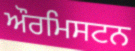
ਔਰਮਿਸਟਨ